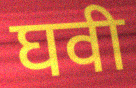
घवी